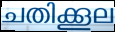
ചതിക്കൂല